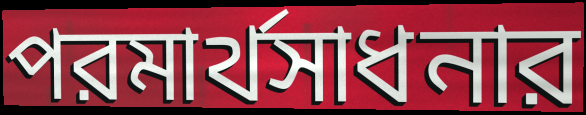
পরমার্থসাধনার